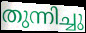
തുന്നിച്ചു